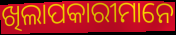
ଖିଲାପକାରୀମାନେ